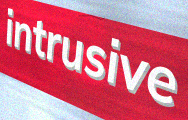
intrusive